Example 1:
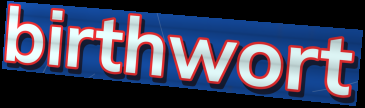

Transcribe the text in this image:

birthwort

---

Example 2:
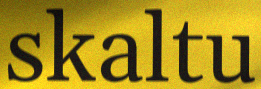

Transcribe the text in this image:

skaltu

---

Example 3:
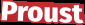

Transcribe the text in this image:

Proust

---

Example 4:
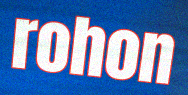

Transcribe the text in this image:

rohon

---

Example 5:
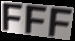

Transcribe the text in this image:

FFF